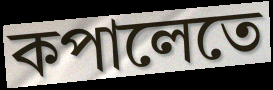
কপালেতে